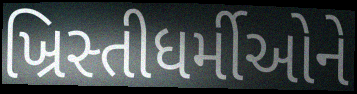
ખ્રિસ્તીધર્મીઓને